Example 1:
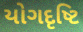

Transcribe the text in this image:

યોગદૃષ્ટિ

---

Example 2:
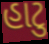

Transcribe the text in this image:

હાટુ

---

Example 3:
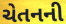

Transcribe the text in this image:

ચેતનની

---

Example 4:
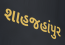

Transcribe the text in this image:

શાહજહાંપુર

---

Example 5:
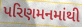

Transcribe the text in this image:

પરિણમનમાંથી